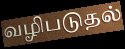
வழிபடுதல்